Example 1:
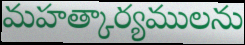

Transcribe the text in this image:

మహత్కార్యములను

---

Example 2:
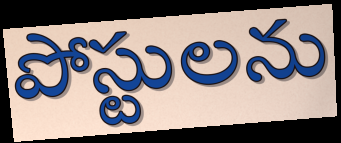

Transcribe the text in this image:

పోస్టులను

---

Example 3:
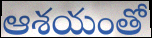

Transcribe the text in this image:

ఆశయంతో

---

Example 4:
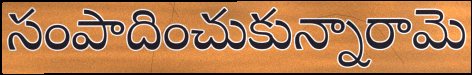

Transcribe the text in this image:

సంపాదించుకున్నారామె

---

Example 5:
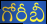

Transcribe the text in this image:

గోరీబీ